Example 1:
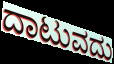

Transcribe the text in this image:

ದಾಟುವದು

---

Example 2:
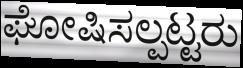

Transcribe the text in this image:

ಘೋಷಿಸಲ್ಪಟ್ಟರು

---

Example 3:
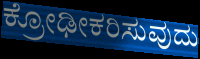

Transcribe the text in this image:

ಕ್ರೋಢೀಕರಿಸುವುದು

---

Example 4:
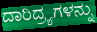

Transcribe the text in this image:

ದಾರಿದ್ರ್ಯಗಳನ್ನು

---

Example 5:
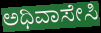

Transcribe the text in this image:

ಅಧಿವಾಸೇಸಿ